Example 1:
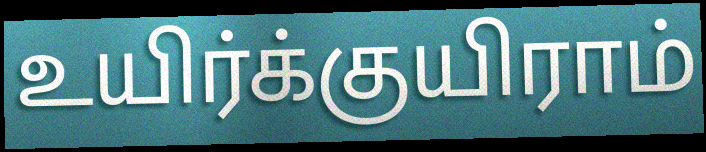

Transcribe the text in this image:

உயிர்க்குயிராம்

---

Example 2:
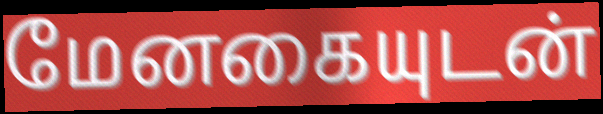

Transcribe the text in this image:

மேனகையுடன்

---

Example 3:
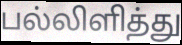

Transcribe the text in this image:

பல்லிளித்து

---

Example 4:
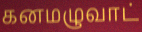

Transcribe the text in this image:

கனமழுவாட்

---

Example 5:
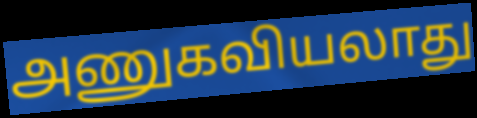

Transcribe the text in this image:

அணுகவியலாது